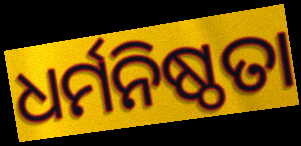
ଧର୍ମନିଷ୍ଠତା